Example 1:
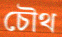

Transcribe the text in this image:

চৌথ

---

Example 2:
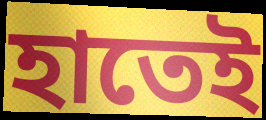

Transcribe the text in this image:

হাতেই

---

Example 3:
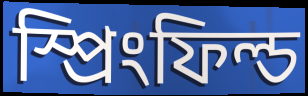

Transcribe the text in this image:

স্প্রিংফিল্ড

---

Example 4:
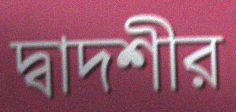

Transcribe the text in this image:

দ্বাদশীর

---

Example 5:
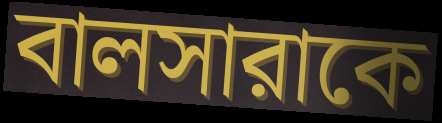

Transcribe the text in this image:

বালসারাকে